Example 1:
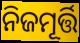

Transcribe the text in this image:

ନିଜମୂର୍ତ୍ତି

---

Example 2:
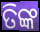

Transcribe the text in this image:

ତିଙ୍କ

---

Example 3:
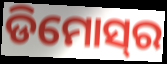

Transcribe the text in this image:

ଡିମୋସ୍‌ର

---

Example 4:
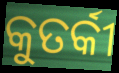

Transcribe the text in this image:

କୁତର୍କୀ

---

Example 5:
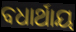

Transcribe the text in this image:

ବଧାର୍ଥାୟ